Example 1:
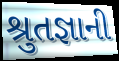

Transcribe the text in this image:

શ્રુતજ્ઞાની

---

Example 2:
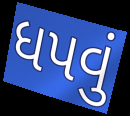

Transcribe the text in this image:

ધપવું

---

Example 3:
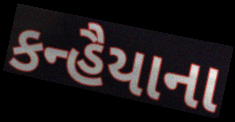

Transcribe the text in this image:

કન્હૈયાના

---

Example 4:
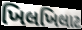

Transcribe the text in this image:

ખિલખિલાટ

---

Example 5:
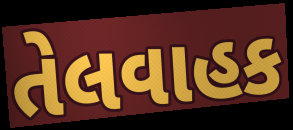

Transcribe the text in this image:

તેલવાહક